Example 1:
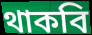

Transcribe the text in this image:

থাকবি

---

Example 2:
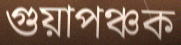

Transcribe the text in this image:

গুয়াপঞ্চক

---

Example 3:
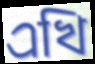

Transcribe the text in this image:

এখি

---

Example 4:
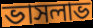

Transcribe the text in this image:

ভাসলাভ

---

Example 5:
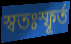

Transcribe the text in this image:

স্বতঃস্ফূর্ত